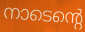
നാടെന്റെ